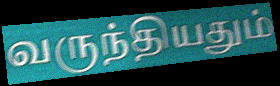
வருந்தியதும்